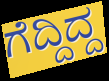
ಗೆದ್ದಿದ್ದ